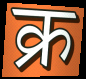
क्र